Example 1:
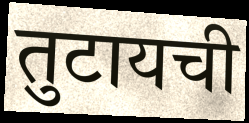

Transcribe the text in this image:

तुटायची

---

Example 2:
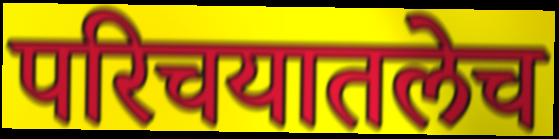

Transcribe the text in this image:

परिचयातलेच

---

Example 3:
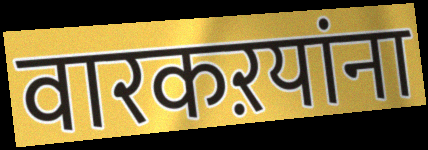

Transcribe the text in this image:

वारकऱयांना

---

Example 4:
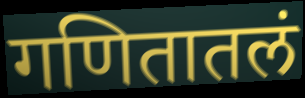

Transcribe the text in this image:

गणितातलं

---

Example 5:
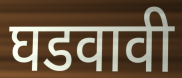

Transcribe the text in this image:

घडवावी